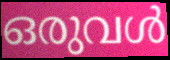
ഒരുവൾ